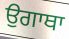
ਉਗਾਥਾ